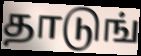
தாடுங்